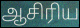
ஆசிரிய